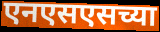
एनएसएसच्या